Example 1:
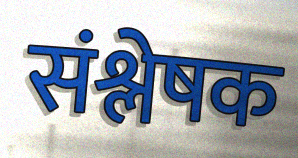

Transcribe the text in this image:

संश्लेषक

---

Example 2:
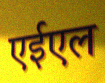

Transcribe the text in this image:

एईएल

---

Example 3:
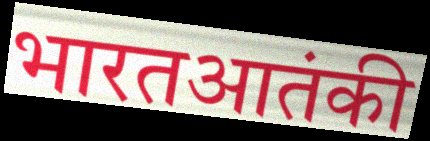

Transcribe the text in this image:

भारतआतंकी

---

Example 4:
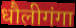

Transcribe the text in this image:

धौलीगंगा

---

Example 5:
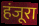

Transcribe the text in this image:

हंजूरा